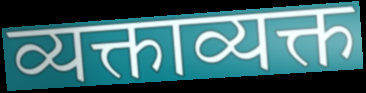
व्यक्ताव्यक्त